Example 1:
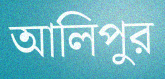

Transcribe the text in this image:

আলিপুর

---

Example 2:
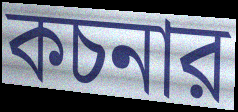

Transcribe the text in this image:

কচনার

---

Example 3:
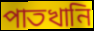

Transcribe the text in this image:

পাতখানি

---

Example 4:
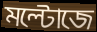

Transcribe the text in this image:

মল্টোজে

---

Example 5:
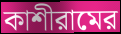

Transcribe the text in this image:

কাশীরামের